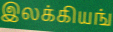
இலக்கியங்